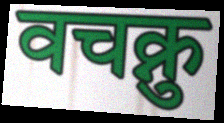
वचक्नु